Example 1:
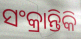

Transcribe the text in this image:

ସଂକ୍ରାନ୍ତିକି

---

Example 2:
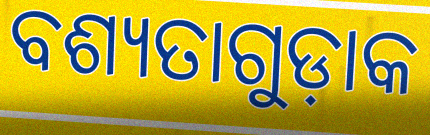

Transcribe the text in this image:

ବଶ୍ୟତାଗୁଡ଼ାକ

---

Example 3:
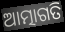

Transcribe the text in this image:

ଆତ୍ମାଗତି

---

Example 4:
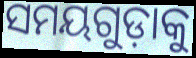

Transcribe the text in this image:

ସମୟଗୁଡ଼ାକୁ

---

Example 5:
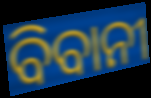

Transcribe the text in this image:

ବିବାନୀ